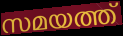
സമയത്ത്